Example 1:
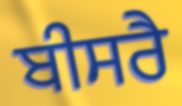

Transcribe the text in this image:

ਬੀਸਰੈ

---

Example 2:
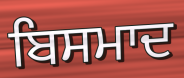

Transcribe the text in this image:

ਬਿਸਮਾਦ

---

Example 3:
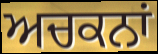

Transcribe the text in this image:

ਅਚਕਨਾਂ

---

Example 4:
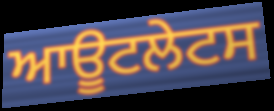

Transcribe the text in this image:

ਆਊਟਲੇਟਸ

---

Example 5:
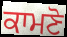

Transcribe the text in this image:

ਕਾਮਣੋ